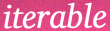
iterable